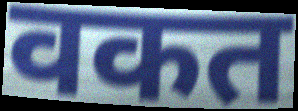
वकत